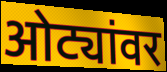
ओट्यांवर